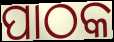
ପାଠକ